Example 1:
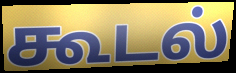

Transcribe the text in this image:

கூடல்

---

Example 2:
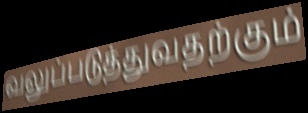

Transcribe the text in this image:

வலுப்படுத்துவதற்கும்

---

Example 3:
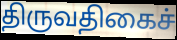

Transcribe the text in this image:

திருவதிகைச்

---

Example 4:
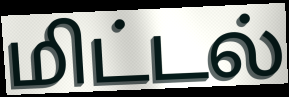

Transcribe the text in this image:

மிட்டல்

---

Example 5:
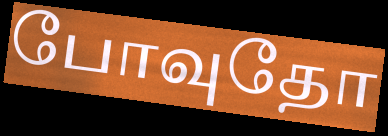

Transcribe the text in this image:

போவுதோ